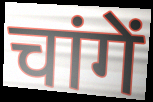
चांगें